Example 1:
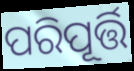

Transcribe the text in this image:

ପରିପୂର୍ତ୍ତି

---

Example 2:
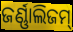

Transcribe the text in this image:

ଜର୍ଣ୍ଣାଲିଜମ୍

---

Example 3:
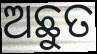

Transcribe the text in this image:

ଅଛୁତ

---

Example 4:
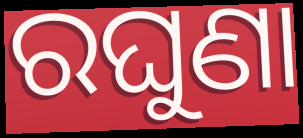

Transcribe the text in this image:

ରଘୁଣା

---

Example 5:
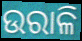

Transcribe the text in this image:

ଉରାଳି